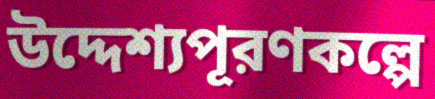
উদ্দেশ্যপূরণকল্পে